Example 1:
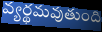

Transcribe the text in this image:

వ్యర్థమవుతుంది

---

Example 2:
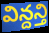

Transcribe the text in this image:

విన్దన్తి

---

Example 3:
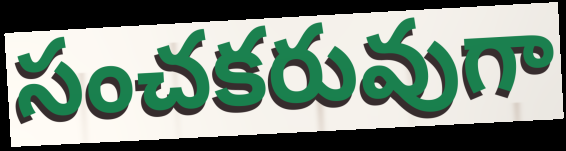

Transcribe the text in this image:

సంచకరువుగా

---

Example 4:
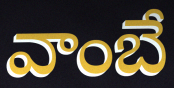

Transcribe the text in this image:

వాంబే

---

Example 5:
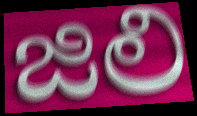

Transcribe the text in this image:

జిలి